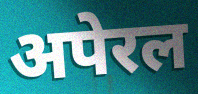
अपेरल